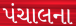
પંચાલના